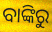
ବାଙ୍କିରୁ